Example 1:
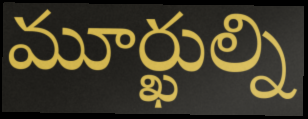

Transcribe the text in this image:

మూర్ఖుల్ని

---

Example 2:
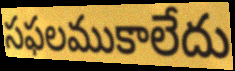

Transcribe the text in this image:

సఫలముకాలేదు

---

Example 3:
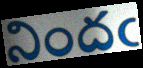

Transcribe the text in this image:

నిందఁ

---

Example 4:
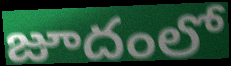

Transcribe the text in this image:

జూదంలో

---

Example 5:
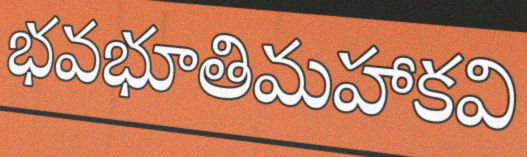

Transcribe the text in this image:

భవభూతిమహాకవి